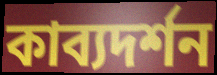
কাব্যদর্শন